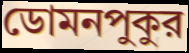
ডোমনপুকুর